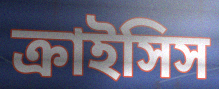
ক্রাইসিস